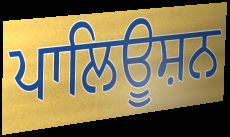
ਪਾਲਿਊਸ਼ਨ